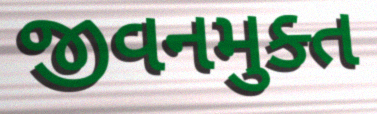
જીવનમુક્ત